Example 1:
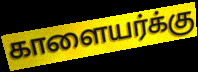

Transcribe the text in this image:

காளையர்க்கு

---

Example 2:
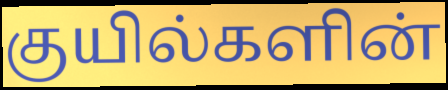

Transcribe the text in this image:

குயில்களின்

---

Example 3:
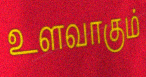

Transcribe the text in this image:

உளவாகும்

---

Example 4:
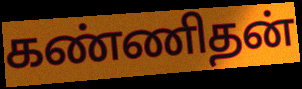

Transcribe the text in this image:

கண்ணிதன்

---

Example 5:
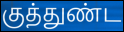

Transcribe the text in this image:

குத்துண்ட